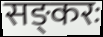
सङ्करः